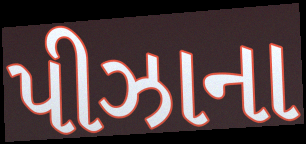
પીઝાના